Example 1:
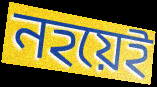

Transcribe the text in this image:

নহয়েই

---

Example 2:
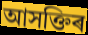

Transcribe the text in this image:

আসক্তিৰ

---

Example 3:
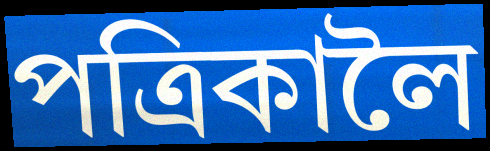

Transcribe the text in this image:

পত্ৰিকালৈ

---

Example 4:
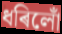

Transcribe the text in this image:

ধৰিলোঁ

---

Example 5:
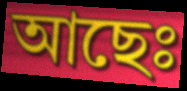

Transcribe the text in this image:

আছেঃ